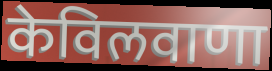
केविलवाणा